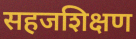
सहजशिक्षण